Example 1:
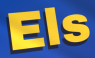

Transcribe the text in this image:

Els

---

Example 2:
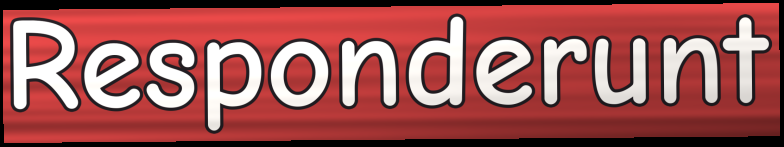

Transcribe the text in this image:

Responderunt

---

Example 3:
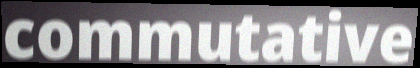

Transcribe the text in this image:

commutative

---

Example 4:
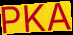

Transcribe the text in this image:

PKA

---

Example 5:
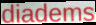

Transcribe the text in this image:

diadems